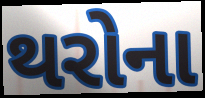
થરોના